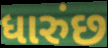
ધારુંછ